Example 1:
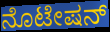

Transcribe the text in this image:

ನೊಟೇಷನ್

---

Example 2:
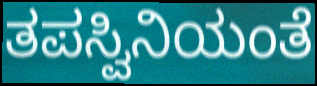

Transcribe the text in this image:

ತಪಸ್ವಿನಿಯಂತೆ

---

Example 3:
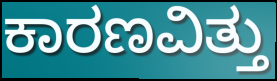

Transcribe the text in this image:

ಕಾರಣವಿತ್ತು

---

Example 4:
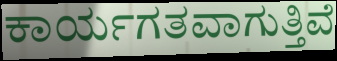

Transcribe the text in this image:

ಕಾರ್ಯಗತವಾಗುತ್ತಿವೆ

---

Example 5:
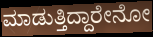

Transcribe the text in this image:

ಮಾಡುತ್ತಿದ್ದಾರೇನೋ